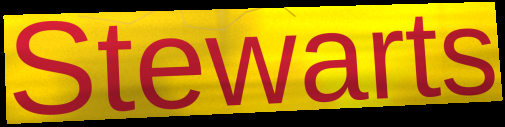
Stewarts